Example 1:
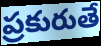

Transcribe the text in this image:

ప్రకురుతే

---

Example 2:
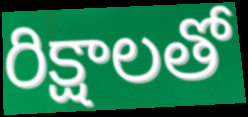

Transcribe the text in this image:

రిక్షాలతో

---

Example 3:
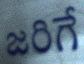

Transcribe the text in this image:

జరిగే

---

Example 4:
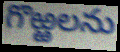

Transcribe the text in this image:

గొఱ్ఱలను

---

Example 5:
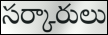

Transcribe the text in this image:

సర్కారులు